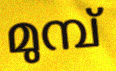
മുമ്പ്